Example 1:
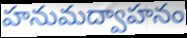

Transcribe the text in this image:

హనుమద్వాహనం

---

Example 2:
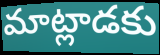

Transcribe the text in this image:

మాట్లాడకు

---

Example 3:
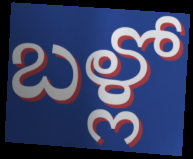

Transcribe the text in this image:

బళ్లో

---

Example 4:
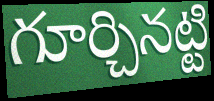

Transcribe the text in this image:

గూర్చినట్టి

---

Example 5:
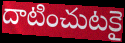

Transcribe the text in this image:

దాటించుటకై